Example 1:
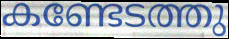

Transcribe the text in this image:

കണ്ടേടത്തു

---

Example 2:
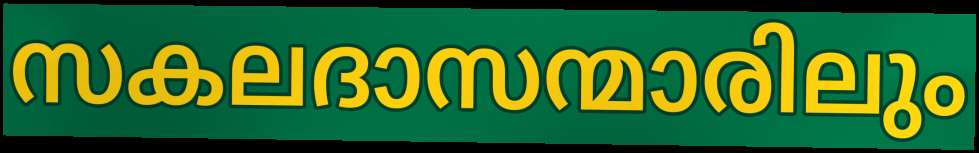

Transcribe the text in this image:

സകലദാസന്മാരിലും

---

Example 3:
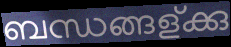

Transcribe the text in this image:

ബന്ധങ്ങള്ക്കു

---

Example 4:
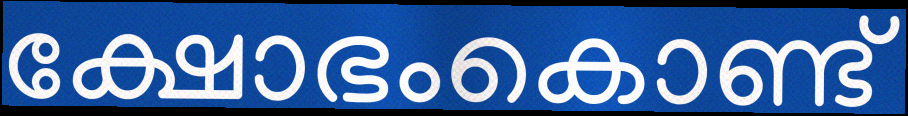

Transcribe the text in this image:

ക്ഷോഭംകൊണ്ട്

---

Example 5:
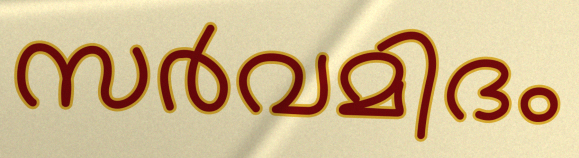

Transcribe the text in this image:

സർവമിദം